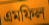
এমফিল